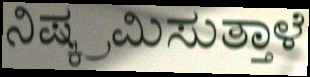
ನಿಷ್ಕ್ರಮಿಸುತ್ತಾಳೆ